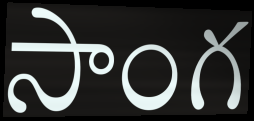
సాంగ